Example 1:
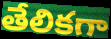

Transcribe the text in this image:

తేలికగా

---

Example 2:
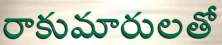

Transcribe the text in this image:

రాకుమారులతో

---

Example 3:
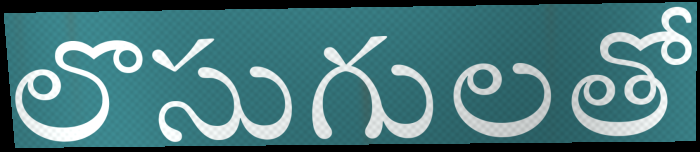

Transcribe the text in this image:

లొసుగులతో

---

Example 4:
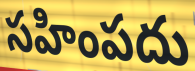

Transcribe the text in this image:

సహింపదు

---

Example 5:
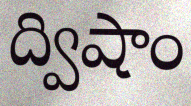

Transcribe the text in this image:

ద్విషాం